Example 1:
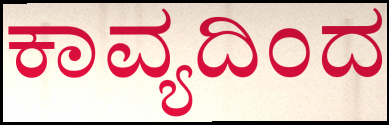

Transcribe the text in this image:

ಕಾವ್ಯದಿಂದ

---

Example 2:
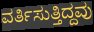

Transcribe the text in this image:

ವರ್ತಿಸುತ್ತಿದ್ದವು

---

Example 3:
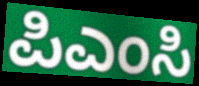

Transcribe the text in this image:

ಪಿಎಂಸಿ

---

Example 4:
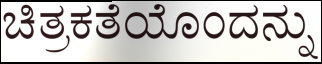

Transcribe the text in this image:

ಚಿತ್ರಕತೆಯೊಂದನ್ನು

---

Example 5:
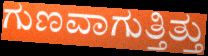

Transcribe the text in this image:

ಗುಣವಾಗುತ್ತಿತ್ತು